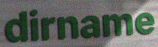
dirname